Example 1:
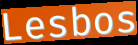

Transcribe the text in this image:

Lesbos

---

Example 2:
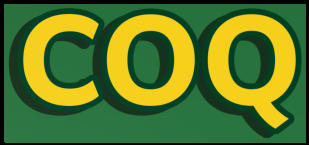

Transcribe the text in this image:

COQ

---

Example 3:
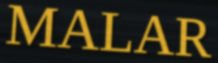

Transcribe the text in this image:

MALAR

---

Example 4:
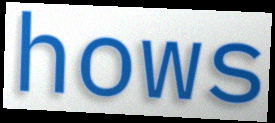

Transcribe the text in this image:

hows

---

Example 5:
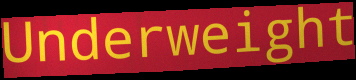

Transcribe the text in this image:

Underweight